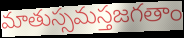
మాతుస్సమస్తజగతాం